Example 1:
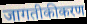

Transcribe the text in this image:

जागतीकीकरण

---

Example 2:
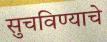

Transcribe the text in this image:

सुचविण्याचे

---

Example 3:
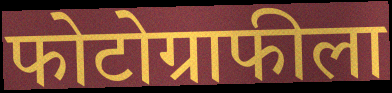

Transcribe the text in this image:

फोटोग्राफीला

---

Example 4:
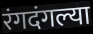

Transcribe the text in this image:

रंगदंगल्या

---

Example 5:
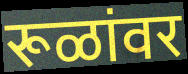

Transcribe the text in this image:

रूळांवर